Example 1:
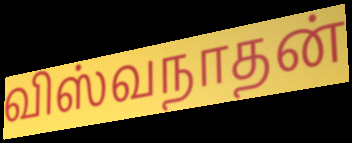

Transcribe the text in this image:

விஸ்வநாதன்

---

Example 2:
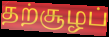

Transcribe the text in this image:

தற்சூழப்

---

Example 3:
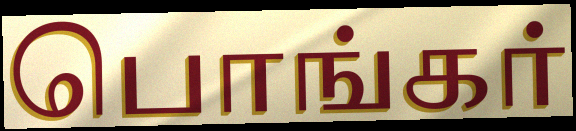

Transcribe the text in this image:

பொங்கர்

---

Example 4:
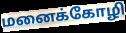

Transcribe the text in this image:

மனைக்கோழி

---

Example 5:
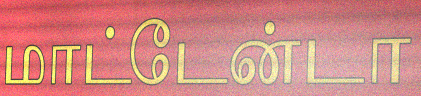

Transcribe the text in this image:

மாட்டேன்டா